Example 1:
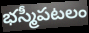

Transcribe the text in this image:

భస్మీపటలం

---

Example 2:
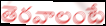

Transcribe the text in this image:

తెరవాలంటే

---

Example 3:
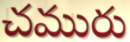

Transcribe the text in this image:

చమురు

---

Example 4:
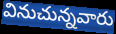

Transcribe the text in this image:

వినుచున్నవారు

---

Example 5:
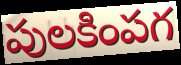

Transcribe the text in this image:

పులకింపగ